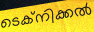
ടെക്നിക്കൽ